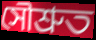
সৌশ্ৰুত